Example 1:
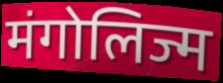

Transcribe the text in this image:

मंगोलिज्म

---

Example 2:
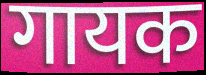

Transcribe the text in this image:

गायक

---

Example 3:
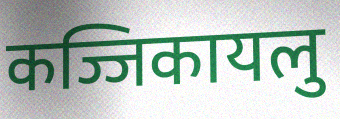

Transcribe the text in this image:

कज्जिकायलु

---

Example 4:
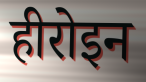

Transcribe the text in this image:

हीरोइन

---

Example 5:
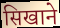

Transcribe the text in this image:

सिखाने